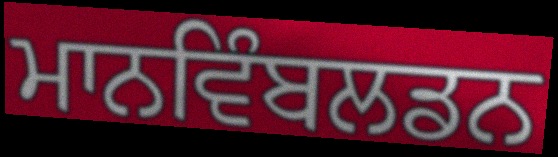
ਮਾਨਵਿੰਬਲਡਨ